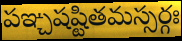
పఞ్చషష్టితమస్సర్గః